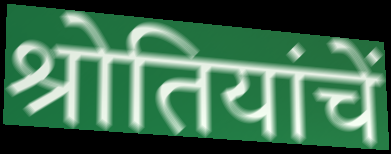
श्रोतियांचें